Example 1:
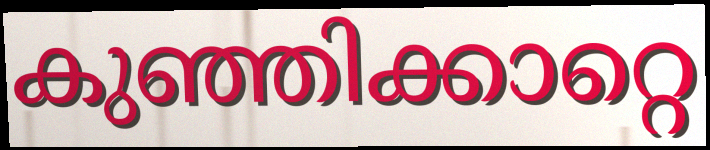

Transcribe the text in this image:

കുഞ്ഞിക്കാറ്റെ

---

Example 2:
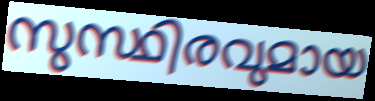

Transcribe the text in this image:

സുസ്ഥിരവുമായ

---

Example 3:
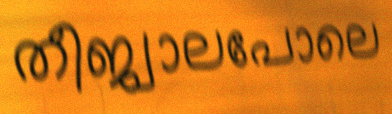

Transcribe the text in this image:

തീജ്വാലപോലെ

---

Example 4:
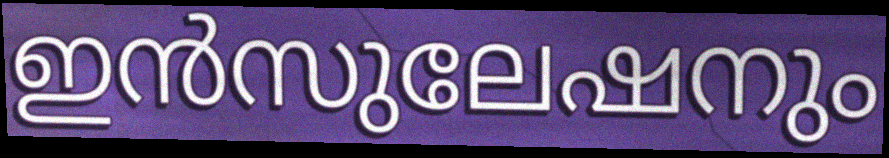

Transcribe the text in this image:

ഇൻസുലേഷനും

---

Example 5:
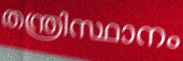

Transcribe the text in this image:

തന്ത്രിസ്ഥാനം